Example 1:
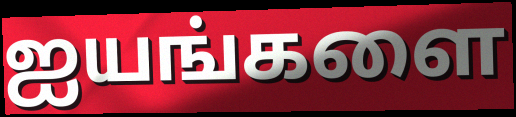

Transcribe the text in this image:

ஐயங்களை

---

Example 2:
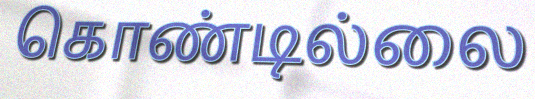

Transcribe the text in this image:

கொண்டில்லை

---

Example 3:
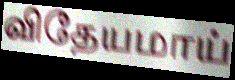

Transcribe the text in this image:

விதேயமாய்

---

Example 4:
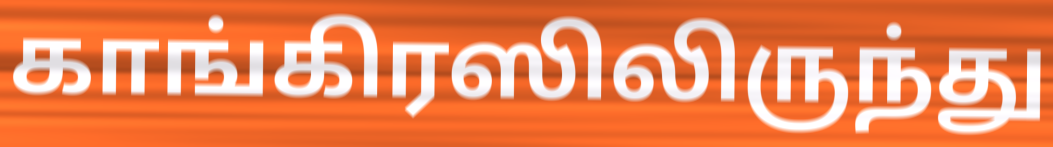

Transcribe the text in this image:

காங்கிரஸிலிருந்து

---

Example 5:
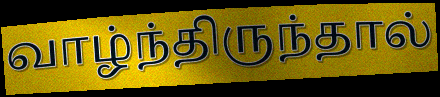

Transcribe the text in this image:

வாழ்ந்திருந்தால்